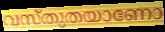
വസ്തുതയാണോ